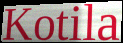
Kotila